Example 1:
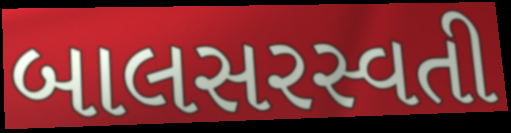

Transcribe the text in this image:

બાલસરસ્વતી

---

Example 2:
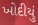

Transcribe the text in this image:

ખોદીયું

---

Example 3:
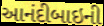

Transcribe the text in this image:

આનંદીબાઇની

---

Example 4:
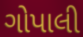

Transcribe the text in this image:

ગોપાલી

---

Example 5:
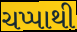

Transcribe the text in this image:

ચપ્પાથી